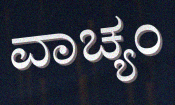
ವಾಚ್ಯಂ